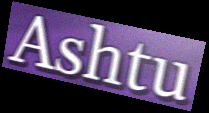
Ashtu